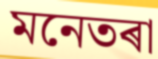
মনেতৰা